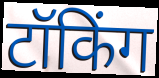
टॉकिंग